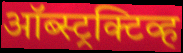
ऑब्स्ट्रक्टिव्ह